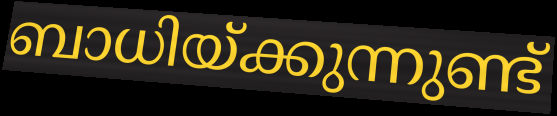
ബാധിയ്ക്കുന്നുണ്ട്